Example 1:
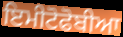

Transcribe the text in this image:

ਇਮੀਟੋਫੋਬੀਆ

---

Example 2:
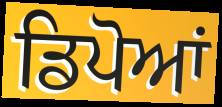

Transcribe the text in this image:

ਡਿਪੋਆਂ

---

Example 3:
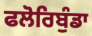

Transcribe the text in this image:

ਫਲੋਰਿਬੁੰਡਾ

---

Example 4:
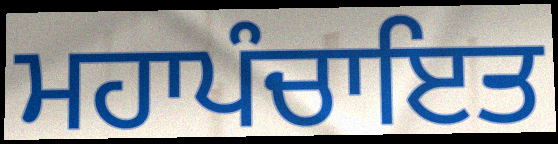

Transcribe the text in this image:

ਮਹਾਪੰਚਾਇਤ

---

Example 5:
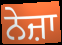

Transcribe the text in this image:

ਨੇਜ਼ਾ